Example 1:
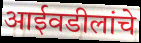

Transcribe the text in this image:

आईवडीलांचे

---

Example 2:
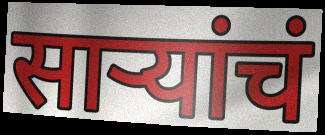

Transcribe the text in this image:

साऱ्यांचं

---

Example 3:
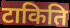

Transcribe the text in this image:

टाकिति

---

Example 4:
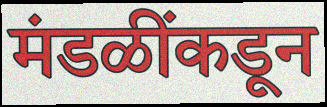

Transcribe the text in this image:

मंडळींकडून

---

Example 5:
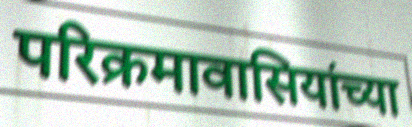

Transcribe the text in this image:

परिक्रमावासियांच्या